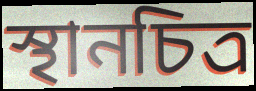
স্থানচিত্র